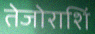
तेजोराशिं